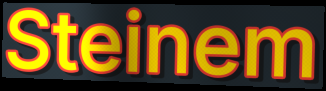
Steinem